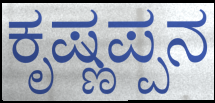
ಕೃಷ್ಣಪ್ಪನ